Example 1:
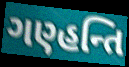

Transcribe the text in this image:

ગણ્હન્તિ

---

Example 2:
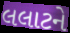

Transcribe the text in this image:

લલાટને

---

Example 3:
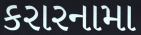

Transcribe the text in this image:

કરારનામા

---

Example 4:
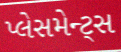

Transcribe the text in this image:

પ્લેસમેન્ટ્સ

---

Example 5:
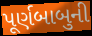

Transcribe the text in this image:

પૂર્ણબાબુની